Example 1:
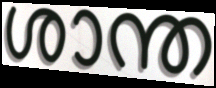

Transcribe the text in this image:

ശാന്ത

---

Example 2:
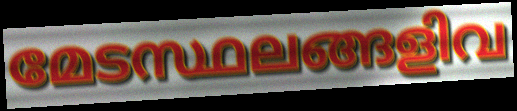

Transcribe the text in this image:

മേടസ്ഥലങ്ങളിവ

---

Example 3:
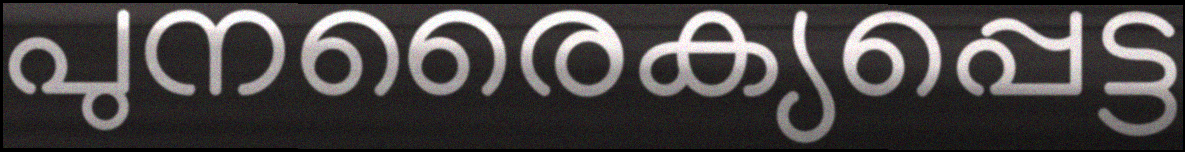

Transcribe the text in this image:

പുനരൈക്യപ്പെട്ട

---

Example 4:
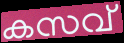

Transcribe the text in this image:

കസവ്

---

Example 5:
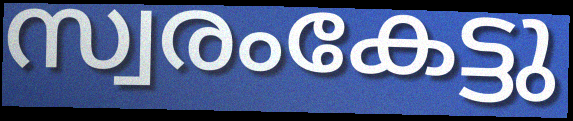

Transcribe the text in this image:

സ്വരംകേട്ടു